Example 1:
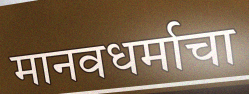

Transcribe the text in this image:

मानवधर्माचा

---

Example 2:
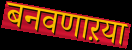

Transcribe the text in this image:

बनवणाऱया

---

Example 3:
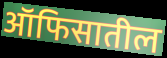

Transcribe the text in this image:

ऑफिसातील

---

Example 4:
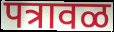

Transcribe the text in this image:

पत्रावळ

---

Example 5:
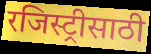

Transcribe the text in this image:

रजिस्ट्रीसाठी